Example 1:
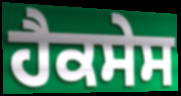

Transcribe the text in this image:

ਹੈਕਸੇਸ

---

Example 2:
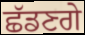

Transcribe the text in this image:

ਛੱਡਣਗੇ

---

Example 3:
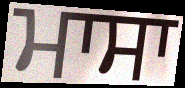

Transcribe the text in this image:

ਮਾਸਾ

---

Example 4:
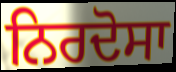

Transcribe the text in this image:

ਨਿਰਦੋਸਾ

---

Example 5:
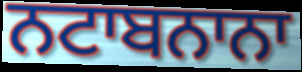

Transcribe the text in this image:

ਨਟਾਬਨਾਨਾ